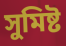
সুমিষ্ট